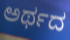
ಅರ್ಥದ